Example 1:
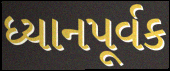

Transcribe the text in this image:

ધ્યાનપૂર્વક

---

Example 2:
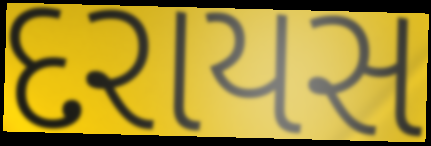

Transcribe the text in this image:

દરાયસ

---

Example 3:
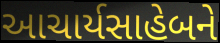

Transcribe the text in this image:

આચાર્યસાહેબને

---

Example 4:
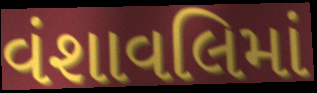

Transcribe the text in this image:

વંશાવલિમાં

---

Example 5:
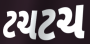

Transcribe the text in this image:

ટચટચ